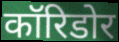
कॉरिडोर